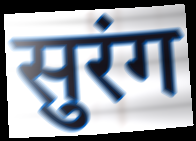
सुरंग